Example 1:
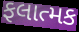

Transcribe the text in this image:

ફલાત્મક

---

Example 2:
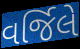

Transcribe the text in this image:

વર્જિલે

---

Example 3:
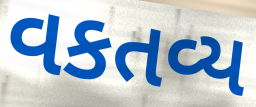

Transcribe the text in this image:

વકતવ્ય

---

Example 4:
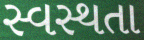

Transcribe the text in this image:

સ્વસ્થતા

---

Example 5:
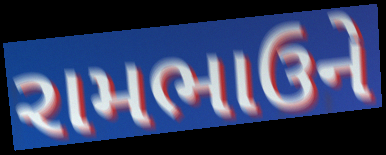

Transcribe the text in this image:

રામભાઉને